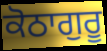
ਕੋਠਾਗੁਰੂ